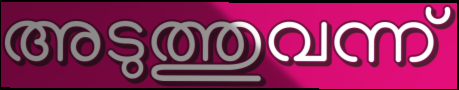
അടുത്തുവന്ന്